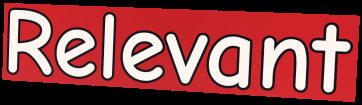
Relevant